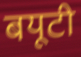
बयूटी